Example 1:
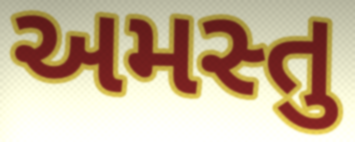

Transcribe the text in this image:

અમસ્તુ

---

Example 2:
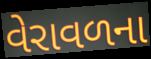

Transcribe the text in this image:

વેરાવળના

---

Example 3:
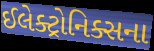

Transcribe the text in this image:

ઈલેક્ટ્રોનિક્સના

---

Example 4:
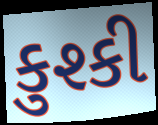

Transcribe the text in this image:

કુશ્કી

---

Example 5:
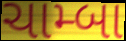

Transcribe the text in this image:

ચામ્બા